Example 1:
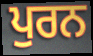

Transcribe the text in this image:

ਪੁਰਨ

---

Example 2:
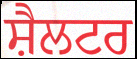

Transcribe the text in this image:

ਸ਼ੈਲਟਰ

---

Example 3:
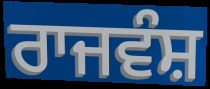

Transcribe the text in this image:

ਰਾਜਵੰਸ਼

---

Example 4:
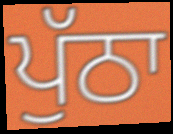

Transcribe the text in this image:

ਪੁੱਠਾ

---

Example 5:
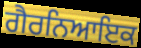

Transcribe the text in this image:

ਗੈਰਨਿਆਇਕ